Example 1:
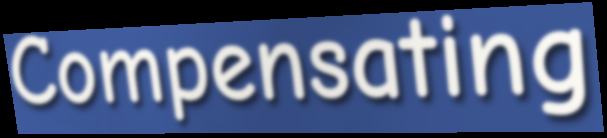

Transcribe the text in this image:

Compensating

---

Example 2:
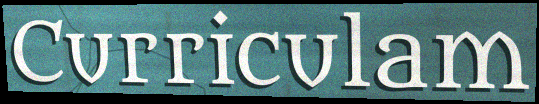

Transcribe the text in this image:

Curriculam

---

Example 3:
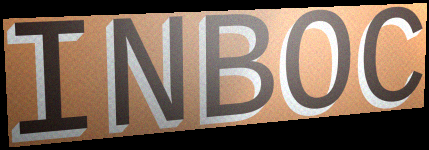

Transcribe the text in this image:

INBOC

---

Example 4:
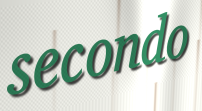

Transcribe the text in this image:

secondo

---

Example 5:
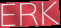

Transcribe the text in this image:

ERK